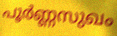
പൂർണ്ണസുഖം